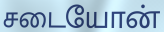
சடையோன்